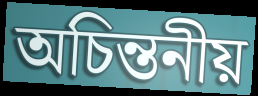
অচিন্তনীয়